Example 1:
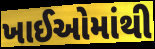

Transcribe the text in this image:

ખાઈઓમાંથી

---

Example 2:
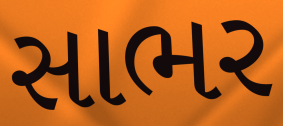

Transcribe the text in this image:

સાભર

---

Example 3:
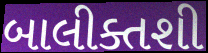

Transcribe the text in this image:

બાલીક્તશી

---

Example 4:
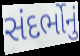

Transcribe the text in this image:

સંદર્ભોનું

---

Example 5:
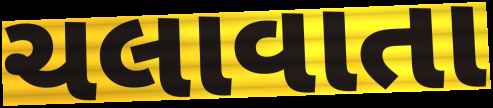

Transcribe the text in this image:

ચલાવાતા